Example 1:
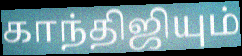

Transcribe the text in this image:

காந்திஜியும்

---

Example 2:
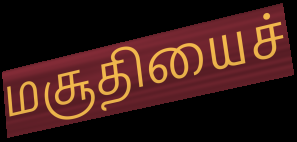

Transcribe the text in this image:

மசூதியைச்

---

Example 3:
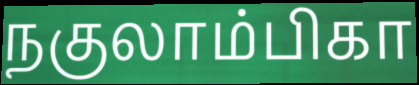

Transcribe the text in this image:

நகுலாம்பிகா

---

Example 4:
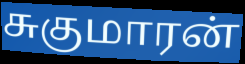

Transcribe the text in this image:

சுகுமாரன்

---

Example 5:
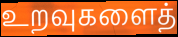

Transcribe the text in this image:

உறவுகளைத்